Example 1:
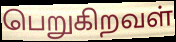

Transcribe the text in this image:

பெறுகிறவள்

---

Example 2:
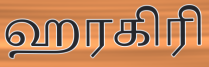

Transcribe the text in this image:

ஹரகிரி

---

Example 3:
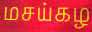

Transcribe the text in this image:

மசய்கழ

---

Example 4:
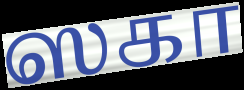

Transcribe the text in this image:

ஸகா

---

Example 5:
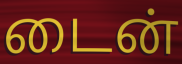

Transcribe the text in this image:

டைன்